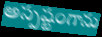
అస్పష్టంగాను